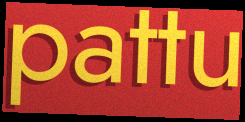
pattu